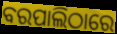
ବରପାଲିଠାରେ